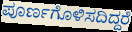
ಪೂರ್ಣಗೊಳಿಸದಿದ್ದರೆ